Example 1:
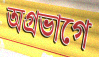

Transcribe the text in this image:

অগ্রভাগে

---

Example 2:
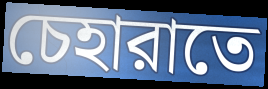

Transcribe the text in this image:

চেহারাতে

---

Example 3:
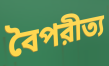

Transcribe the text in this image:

বৈপরীত্য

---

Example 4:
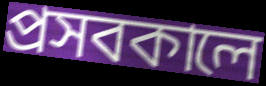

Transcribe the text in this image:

প্রসবকালে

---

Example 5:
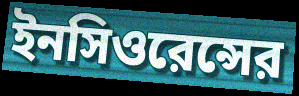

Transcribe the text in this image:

ইনসিওরেন্সের